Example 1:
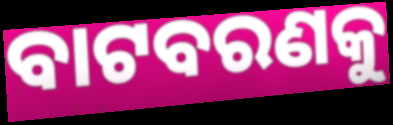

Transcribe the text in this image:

ବାଟବରଣକୁ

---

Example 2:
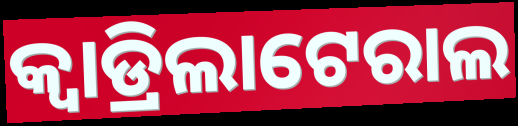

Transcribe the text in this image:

କ୍ୱାଡ୍ରିଲାଟେରାଲ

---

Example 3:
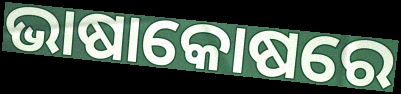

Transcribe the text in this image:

ଭାଷାକୋଷରେ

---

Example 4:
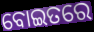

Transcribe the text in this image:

ବୋଇତରେ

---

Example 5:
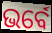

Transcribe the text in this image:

ଭର୍ବେ